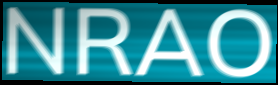
NRAO